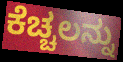
ಕೆಚ್ಚಲನ್ನು